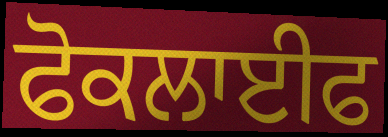
ਫੋਕਲਾਈਫ